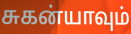
சுகன்யாவும்